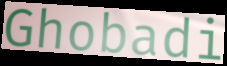
Ghobadi